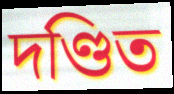
দণ্ডিত